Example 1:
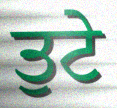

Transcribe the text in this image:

ਤੁਟੇ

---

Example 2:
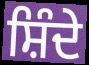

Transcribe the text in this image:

ਸ਼ਿੰਦੇ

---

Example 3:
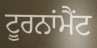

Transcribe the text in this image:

ਟੂਰਨਾਂਮੈਂਟ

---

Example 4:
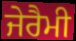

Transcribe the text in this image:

ਜੇਰੈਮੀ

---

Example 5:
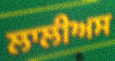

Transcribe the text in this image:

ਲਾਲੀਅਸ